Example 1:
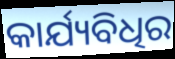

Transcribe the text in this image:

କାର୍ଯ୍ୟବିଧିର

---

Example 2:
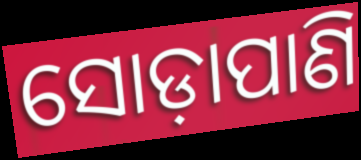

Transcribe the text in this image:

ସୋଡ଼ାପାଣି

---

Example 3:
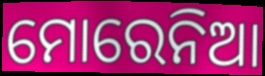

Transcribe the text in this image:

ମୋରେନିଆ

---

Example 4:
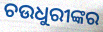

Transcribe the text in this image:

ଚଉଧୁରୀଙ୍କର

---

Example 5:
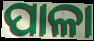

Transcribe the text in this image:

ପାଳା